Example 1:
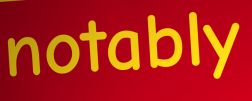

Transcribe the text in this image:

notably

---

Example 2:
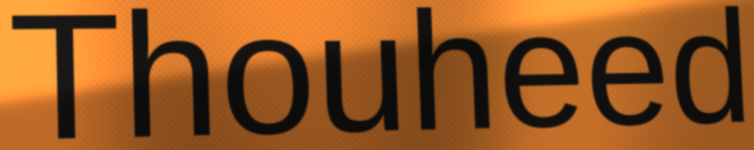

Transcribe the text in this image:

Thouheed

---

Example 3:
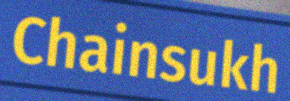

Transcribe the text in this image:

Chainsukh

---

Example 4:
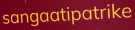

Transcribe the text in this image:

sangaatipatrike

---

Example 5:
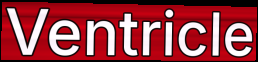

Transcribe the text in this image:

Ventricle